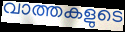
വാത്തകളുടെ